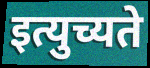
इत्युच्यते